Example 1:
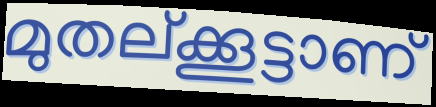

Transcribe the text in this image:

മുതല്ക്കൂട്ടാണ്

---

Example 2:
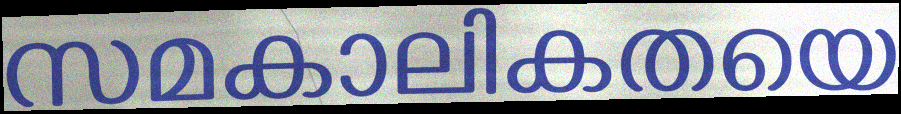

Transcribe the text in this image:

സമകാലികതയെ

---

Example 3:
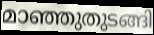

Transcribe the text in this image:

മാഞ്ഞുതുടങ്ങി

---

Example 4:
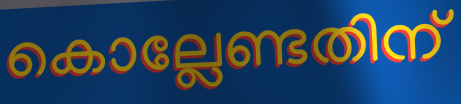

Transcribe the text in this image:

കൊല്ലേണ്ടതിന്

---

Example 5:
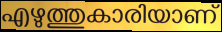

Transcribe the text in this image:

എഴുത്തുകാരിയാണ്